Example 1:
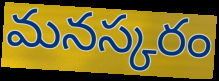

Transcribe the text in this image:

మనస్కరం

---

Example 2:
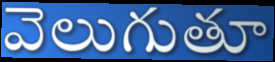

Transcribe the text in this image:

వెలుగుతూ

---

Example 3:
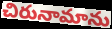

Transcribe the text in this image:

చిరునామాను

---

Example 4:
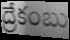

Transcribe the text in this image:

ద్రేకంబు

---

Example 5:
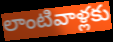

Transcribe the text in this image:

లాంటివాళ్లకు